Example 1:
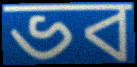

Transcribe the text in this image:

ভব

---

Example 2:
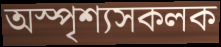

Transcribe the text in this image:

অস্পৃশ্যসকলক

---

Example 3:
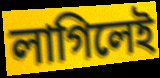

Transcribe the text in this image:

লাগিলেই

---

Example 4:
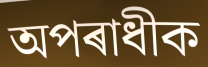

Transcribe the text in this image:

অপৰাধীক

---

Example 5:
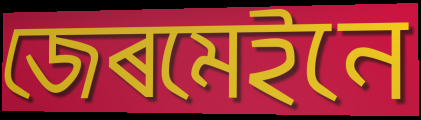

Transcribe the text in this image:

জেৰমেইনে